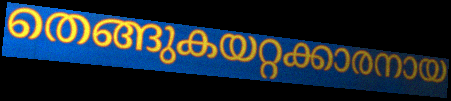
തെങ്ങുകയറ്റക്കാരനായ